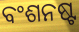
ବଂଶନଷ୍ଟ